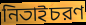
নিতাইচরণ